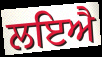
ਲਇਐ